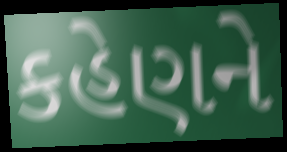
કહેણને